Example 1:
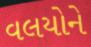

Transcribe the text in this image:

વલયોને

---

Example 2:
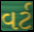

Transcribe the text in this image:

વર્ટ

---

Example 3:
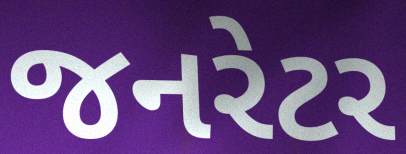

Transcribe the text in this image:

જનરેટર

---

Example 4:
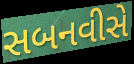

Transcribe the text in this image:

સબનવીસે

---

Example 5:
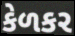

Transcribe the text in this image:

કેળકર